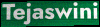
Tejaswini